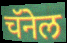
चॅनेल